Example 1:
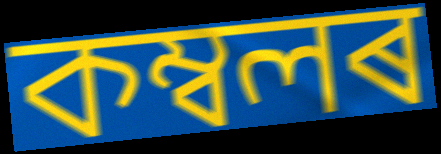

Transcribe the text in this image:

কম্বলৰ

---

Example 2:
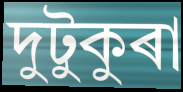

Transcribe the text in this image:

দুটুকুৰা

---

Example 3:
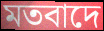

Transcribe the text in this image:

মতবাদে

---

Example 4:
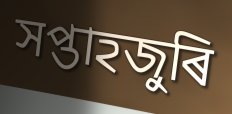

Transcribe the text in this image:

সপ্তাহজুৰি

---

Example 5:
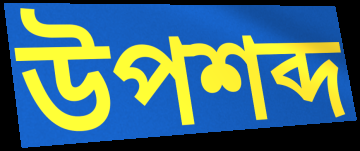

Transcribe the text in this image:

উপশব্দ